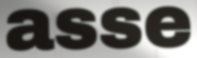
asse